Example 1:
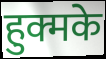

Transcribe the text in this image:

हुक्मके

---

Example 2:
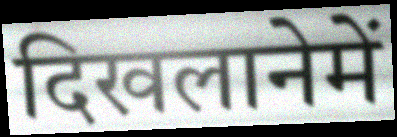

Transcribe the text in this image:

दिखलानेमें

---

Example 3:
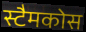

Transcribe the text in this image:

स्टैमकोस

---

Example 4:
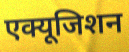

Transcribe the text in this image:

एक्यूजिशन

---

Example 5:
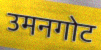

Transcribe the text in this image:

उमनगोट